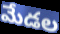
మేడల